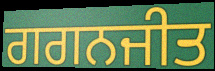
ਗਗਨਜੀਤ